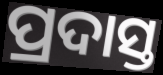
ପ୍ରଦାସ୍ତ